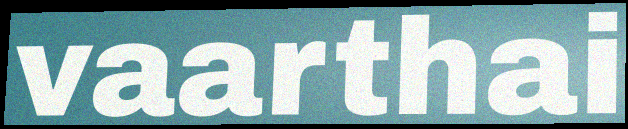
vaarthai